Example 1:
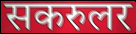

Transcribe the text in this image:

सकरुलर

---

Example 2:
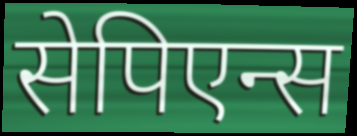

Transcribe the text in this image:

सेपिएन्स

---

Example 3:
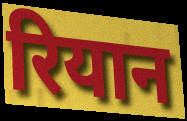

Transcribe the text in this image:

रियान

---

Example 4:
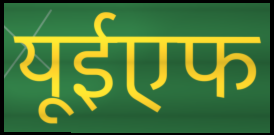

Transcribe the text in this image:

यूईएफ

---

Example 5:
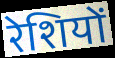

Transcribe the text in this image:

रेशियों